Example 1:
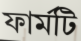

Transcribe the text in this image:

ফার্মটি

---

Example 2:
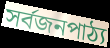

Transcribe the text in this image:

সর্বজনপাঠ্য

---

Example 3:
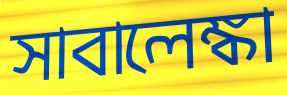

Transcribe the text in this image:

সাবালেঙ্কা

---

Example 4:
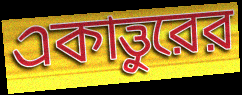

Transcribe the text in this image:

একাত্তুরের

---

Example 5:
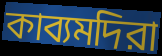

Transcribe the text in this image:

কাব্যমদিরা